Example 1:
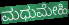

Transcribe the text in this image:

ಮಧುಮೇಹಿ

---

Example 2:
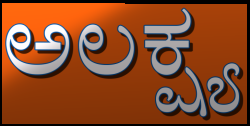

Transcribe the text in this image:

ಅಲಕ್ಷ್ಯ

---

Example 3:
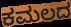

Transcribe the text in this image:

ಕಮಲದ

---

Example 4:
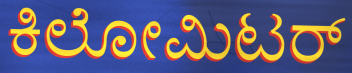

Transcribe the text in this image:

ಕಿಲೋಮಿಟರ್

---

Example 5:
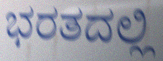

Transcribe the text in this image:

ಭರತದಲ್ಲಿ